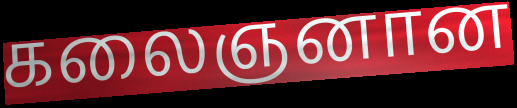
கலைஞனான